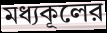
মধ্যকূলের